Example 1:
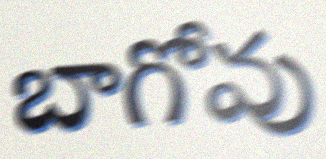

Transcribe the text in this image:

బాగోవు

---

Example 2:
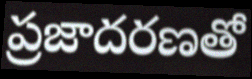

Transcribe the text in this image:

ప్రజాదరణతో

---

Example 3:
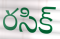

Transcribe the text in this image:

రసిక్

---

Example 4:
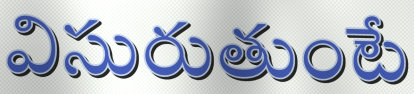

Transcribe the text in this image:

విసురుతుంటే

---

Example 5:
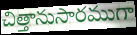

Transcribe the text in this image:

చిత్తానుసారముగా